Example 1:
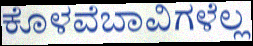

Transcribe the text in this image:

ಕೊಳವೆಬಾವಿಗಳೆಲ್ಲ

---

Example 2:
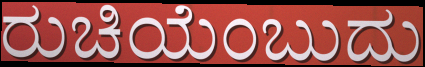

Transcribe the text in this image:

ರುಚಿಯೆಂಬುದು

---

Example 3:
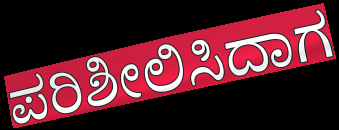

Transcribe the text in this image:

ಪರಿಶೀಲಿಸಿದಾಗ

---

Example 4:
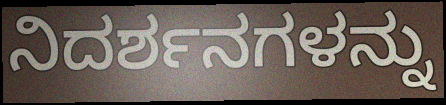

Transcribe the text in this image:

ನಿದರ್ಶನಗಳನ್ನು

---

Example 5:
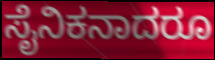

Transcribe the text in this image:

ಸೈನಿಕನಾದರೂ